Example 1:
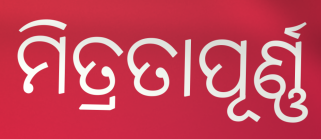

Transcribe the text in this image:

ମିତ୍ରତାପୂର୍ଣ୍ଣ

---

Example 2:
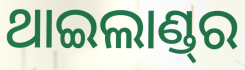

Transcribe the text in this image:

ଥାଇଲାଣ୍ଡ୍‌ର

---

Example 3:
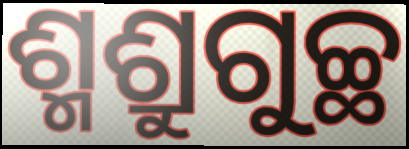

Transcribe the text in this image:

ଶ୍ମଶ୍ରୁଗୁଚ୍ଛ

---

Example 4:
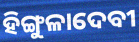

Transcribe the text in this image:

ହିଙ୍ଗୁଳାଦେବୀ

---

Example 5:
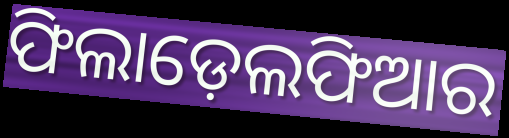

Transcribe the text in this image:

ଫିଲାଡ଼େଲଫିଆର